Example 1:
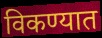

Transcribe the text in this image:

विकण्यात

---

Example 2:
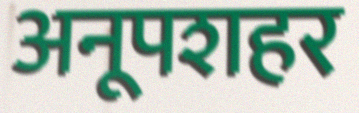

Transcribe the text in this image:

अनूपशहर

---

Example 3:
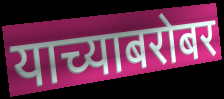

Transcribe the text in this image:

याच्याबरोबर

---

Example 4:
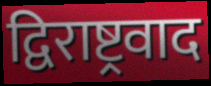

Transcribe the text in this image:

द्विराष्ट्रवाद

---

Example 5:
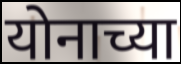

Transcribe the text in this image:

योनाच्या